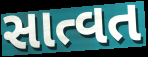
સાત્વત